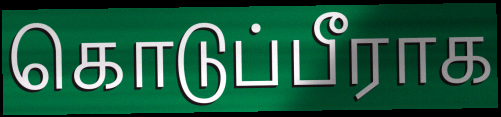
கொடுப்பீராக